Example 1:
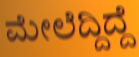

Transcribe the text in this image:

ಮೇಲೆದ್ದಿದ್ದೆ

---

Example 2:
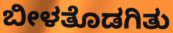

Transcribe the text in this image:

ಬೀಳತೊಡಗಿತು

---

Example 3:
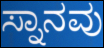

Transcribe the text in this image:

ಸ್ನಾನವು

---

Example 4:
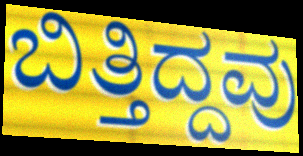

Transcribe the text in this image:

ಬಿತ್ತಿದ್ದವು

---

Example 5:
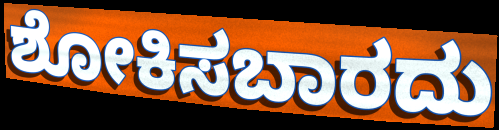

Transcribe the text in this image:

ಶೋಕಿಸಬಾರದು